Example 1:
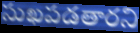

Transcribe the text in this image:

సుఖపడతారని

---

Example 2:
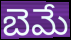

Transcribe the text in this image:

బెమే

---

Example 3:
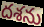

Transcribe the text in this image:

దశను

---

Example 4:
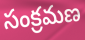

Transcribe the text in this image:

సంక్రమణ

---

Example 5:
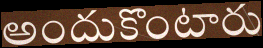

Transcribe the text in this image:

అందుకొంటారు